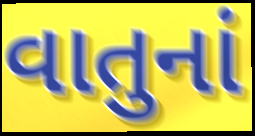
વાતુનાં